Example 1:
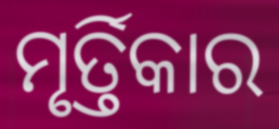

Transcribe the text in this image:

ମୃର୍ତ୍ତିକାର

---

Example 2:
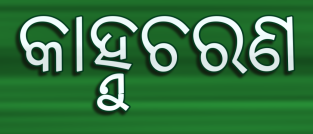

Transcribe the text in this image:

କାହ୍ନୁଚରଣ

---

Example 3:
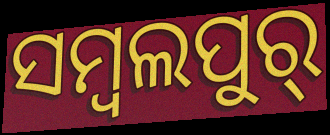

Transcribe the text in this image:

ସମ୍ବଲପୁର୍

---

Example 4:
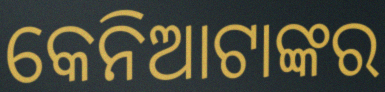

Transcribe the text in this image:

କେନିଆଟାଙ୍କର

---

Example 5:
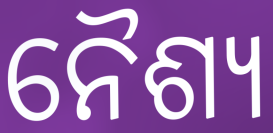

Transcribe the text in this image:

ନୈଶ୍ୟ